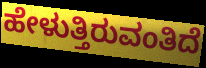
ಹೇಳುತ್ತಿರುವಂತಿದೆ